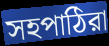
সহপাঠিরা